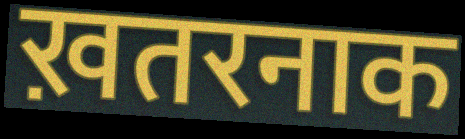
ख़तरनाक